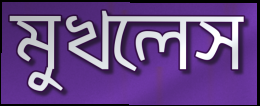
মুখলেস